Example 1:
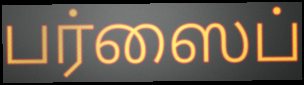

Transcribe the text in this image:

பர்ஸைப்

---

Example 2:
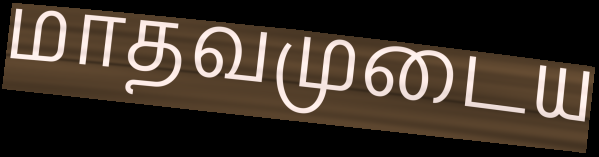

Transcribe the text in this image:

மாதவமுடைய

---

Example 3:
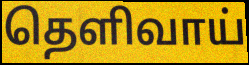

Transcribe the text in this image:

தெளிவாய்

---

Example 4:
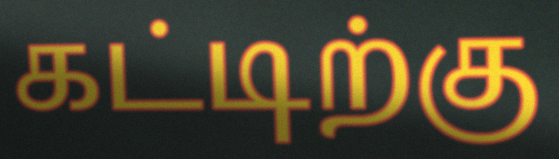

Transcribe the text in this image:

கட்டிற்கு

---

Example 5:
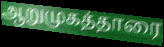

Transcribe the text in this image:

ஆறுமுகத்தாரை